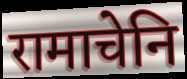
रामाचेनि